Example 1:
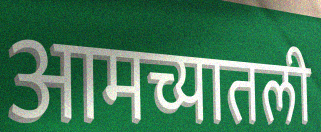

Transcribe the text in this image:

आमच्यातली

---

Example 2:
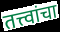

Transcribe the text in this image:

तत्त्वांचा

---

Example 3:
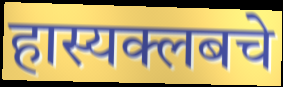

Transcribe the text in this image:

हास्यक्लबचे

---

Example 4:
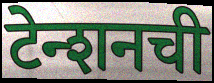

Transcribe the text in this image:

टेन्शनची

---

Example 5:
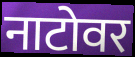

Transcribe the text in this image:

नाटोवर